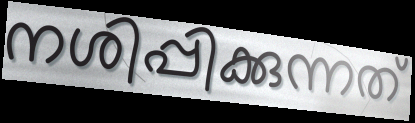
നശിപ്പിക്കുന്നത്